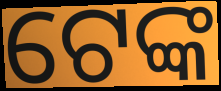
ଟେଙ୍କ